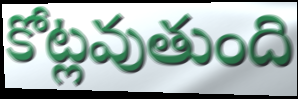
కోట్లవుతుంది